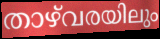
താഴ്‌വരയിലും